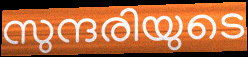
സുന്ദരിയുടെ